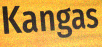
Kangas